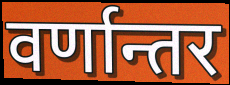
वर्णान्तर